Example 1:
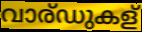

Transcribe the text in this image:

വാര്ഡുകള്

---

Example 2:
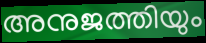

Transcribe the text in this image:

അനുജത്തിയും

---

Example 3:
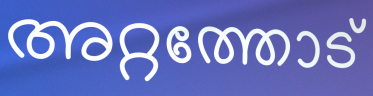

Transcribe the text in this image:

അറ്റത്തോട്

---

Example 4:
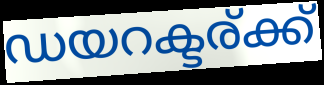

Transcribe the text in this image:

ഡയറക്ടര്ക്ക്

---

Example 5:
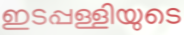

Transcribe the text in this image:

ഇടപ്പള്ളിയുടെ